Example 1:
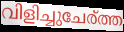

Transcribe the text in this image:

വിളിച്ചുചേര്ത്ത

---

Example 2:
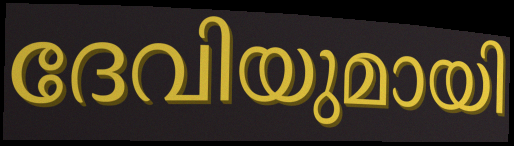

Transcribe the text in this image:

ദേവിയുമായി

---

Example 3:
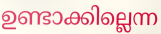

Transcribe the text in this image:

ഉണ്ടാക്കില്ലെന്ന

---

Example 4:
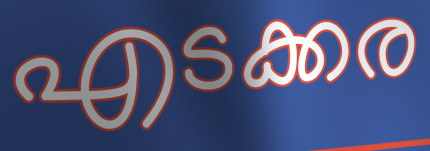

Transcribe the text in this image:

എടക്കര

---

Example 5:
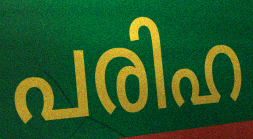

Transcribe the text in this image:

പരിഹ